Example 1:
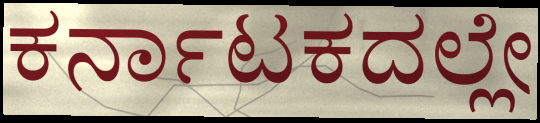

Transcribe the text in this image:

ಕರ್ನಾಟಕದಲ್ಲೇ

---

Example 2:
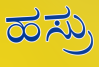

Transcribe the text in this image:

ಹಸ್ರು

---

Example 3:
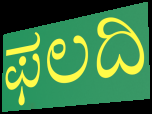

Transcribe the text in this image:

ಫಲದಿ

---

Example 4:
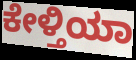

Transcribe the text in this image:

ಕೇಳ್ತಿಯಾ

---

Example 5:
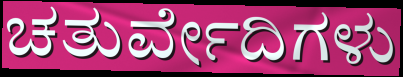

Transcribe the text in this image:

ಚತುರ್ವೇದಿಗಳು